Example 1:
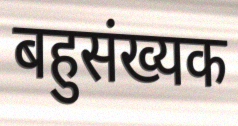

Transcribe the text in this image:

बहुसंख्यक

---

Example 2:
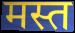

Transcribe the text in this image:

मस्‍त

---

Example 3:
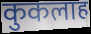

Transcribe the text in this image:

कुकलाह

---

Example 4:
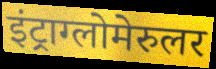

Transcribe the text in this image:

इंट्राग्लोमेरुलर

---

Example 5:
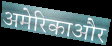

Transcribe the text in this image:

अमेरिकाऔर